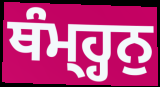
ਥੰਮ੍ਹ੍ਹਨੁ